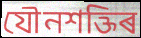
যৌনশক্তিৰ